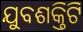
ଯୁବଶକ୍ତିଟି